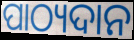
ପାଠ୍ୟଦାନ